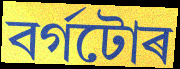
বৰ্গটোৰ